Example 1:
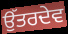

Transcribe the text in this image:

ਉੱਤਰਦੇਵ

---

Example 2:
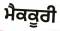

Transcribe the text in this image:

ਮੈਕਕੂਰੀ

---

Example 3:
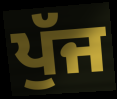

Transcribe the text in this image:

ਪੁੱਜ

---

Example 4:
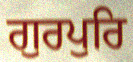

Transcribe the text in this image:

ਗੁਰਪੁਰਿ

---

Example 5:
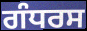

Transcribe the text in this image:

ਗੰਧਰਸ